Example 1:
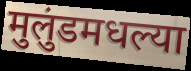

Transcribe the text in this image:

मुलुंडमधल्या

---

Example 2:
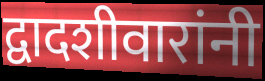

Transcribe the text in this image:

द्वादशीवारांनी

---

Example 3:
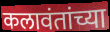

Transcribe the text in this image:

कलावंतांच्या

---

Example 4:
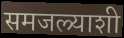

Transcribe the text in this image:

समजल्याशी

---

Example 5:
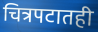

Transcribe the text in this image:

चित्रपटातही